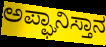
ಅಪ್ಘಾನಿಸ್ತಾನ